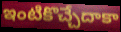
ఇంటికొచ్చేదాకా